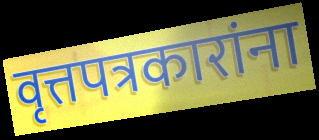
वृत्तपत्रकारांना